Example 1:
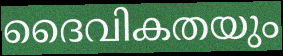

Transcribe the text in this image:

ദൈവികതയും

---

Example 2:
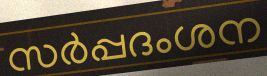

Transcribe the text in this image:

സർപ്പദംശന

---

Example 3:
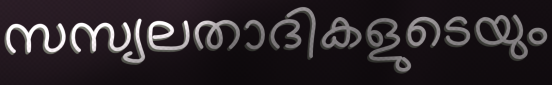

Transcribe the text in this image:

സസ്യലതാദികളുടെയും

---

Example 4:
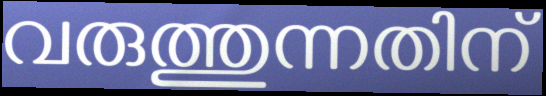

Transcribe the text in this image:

വരുത്തുന്നതിന്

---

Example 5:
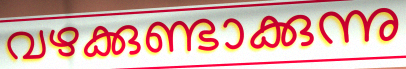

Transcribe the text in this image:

വഴക്കുണ്ടാക്കുന്നു